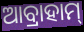
ଆବ୍ରାହାମ୍